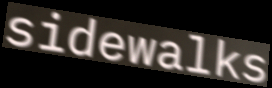
sidewalks